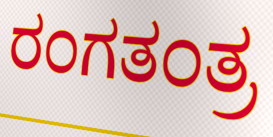
ರಂಗತಂತ್ರ